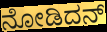
ನೋಡಿದನ್